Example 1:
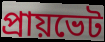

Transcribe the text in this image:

প্রায়ভেট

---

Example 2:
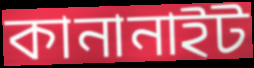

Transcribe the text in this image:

কানানাইট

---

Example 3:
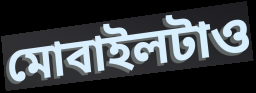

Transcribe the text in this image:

মোবাইলটাও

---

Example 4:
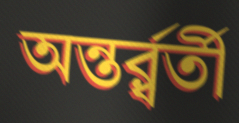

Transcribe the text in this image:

অন্তর্র্বর্তী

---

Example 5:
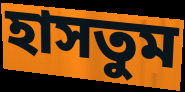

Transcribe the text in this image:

হাসতুম